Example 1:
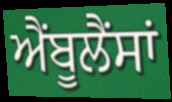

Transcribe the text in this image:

ਐੰਬੂਲੈਂਸਾਂ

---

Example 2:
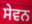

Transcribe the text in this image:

ਸੇਵਨ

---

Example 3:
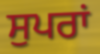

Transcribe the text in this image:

ਸੁਪਰਾਂ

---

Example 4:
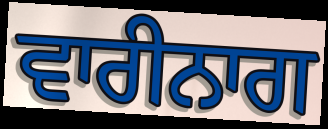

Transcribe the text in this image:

ਵਾਰੀਨਾਗ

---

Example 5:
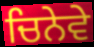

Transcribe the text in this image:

ਚਿਨੇਵੇ